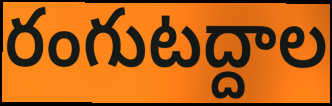
రంగుటద్దాల